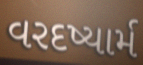
વરદષ્યાર્મ